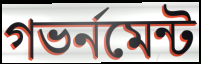
গভর্নমেন্ট